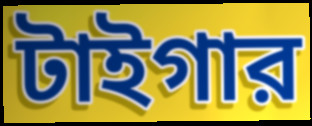
টাইগার